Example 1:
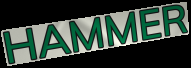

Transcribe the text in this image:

HAMMER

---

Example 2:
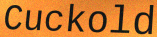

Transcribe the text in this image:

Cuckold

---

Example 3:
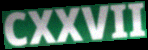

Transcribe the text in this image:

CXXVII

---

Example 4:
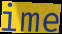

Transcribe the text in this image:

ime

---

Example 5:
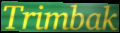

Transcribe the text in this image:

Trimbak